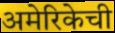
अमेरिकेची